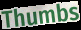
Thumbs